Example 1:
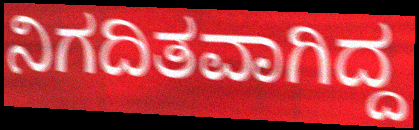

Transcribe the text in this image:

ನಿಗದಿತವಾಗಿದ್ದ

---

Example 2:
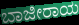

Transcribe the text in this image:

ಬಾಜೀರಾಯ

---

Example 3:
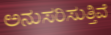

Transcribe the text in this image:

ಅನುಸರಿಸುತ್ತಿವೆ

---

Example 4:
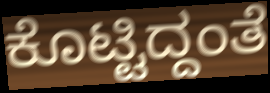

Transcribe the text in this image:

ಕೊಟ್ಟಿದ್ದಂತೆ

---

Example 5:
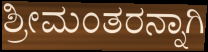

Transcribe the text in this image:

ಶ್ರೀಮಂತರನ್ನಾಗಿ